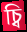
চ্বি